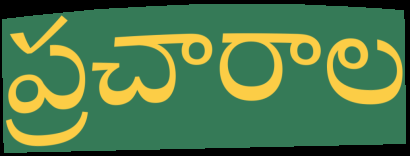
ప్రచారాల